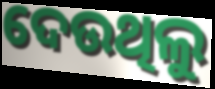
ଦେଉଥିଲୁ